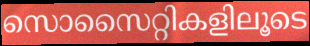
സൊസൈറ്റികളിലൂടെ